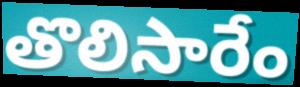
తొలిసారేం